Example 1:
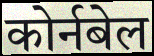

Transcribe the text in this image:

कोर्नबेल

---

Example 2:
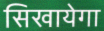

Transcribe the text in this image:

सिखायेगा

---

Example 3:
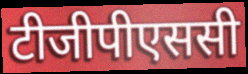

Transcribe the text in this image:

टीजीपीएससी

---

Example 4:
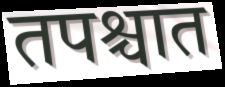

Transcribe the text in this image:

तपश्चात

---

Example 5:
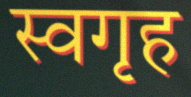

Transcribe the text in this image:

स्वगृह